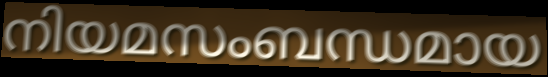
നിയമസംബന്ധമായ